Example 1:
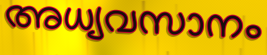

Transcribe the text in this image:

അധ്യവസാനം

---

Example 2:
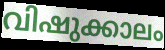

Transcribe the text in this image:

വിഷുക്കാലം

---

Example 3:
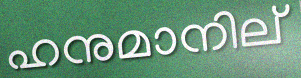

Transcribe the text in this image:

ഹനുമാനില്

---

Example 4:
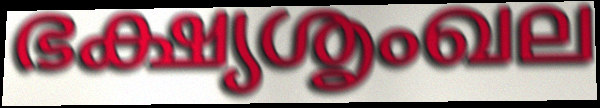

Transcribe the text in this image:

ഭക്ഷ്യശൃംഖല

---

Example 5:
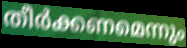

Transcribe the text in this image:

തീർക്കണമെന്നും